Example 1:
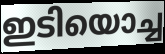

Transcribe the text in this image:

ഇടിയൊച്ച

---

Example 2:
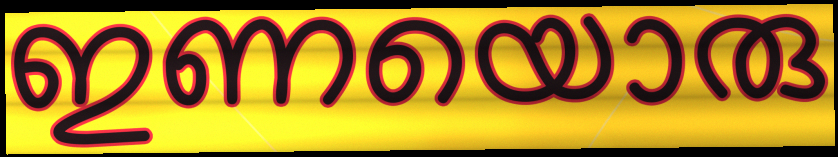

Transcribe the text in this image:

ഇണയൊരു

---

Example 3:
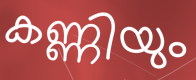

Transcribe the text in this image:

കണ്ണിയും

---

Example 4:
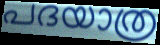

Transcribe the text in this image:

പദയാത്ര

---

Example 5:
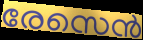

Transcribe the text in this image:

രേസെൻ